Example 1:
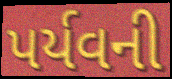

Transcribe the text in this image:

પર્યવની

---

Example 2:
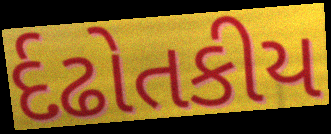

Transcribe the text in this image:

ર્દઢોતકીય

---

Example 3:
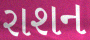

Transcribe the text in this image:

રાશન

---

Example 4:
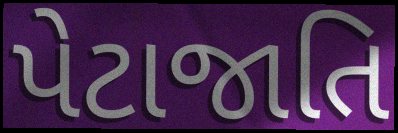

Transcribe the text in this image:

પેટાજાતિ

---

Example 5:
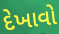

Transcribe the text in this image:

દેખાવો